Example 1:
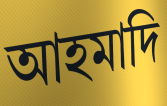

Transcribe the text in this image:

আহমাদি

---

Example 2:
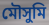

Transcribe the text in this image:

মৌসুমি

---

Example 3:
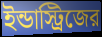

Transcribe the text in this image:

ইন্ডাস্ট্রিজের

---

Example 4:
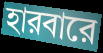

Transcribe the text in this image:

হারবারে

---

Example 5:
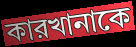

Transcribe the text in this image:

কারখানাকে